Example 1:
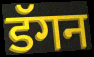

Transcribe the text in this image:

डॅगन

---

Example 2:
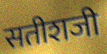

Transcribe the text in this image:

सतीशजी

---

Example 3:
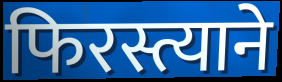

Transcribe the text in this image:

फिरस्त्याने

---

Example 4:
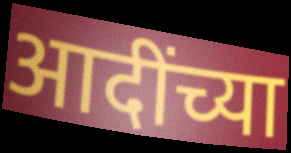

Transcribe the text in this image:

आदींच्या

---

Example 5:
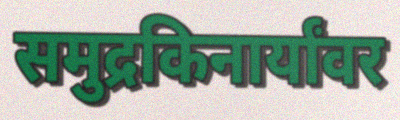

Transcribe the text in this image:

समुद्रकिनार्यांवर